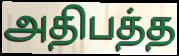
அதிபத்த